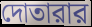
দোতারার